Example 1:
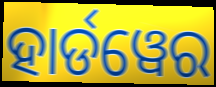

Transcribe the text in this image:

ହାର୍ଡୱେର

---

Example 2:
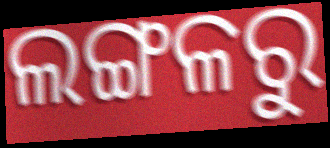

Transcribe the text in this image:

ଲଙ୍ଗଳରୁ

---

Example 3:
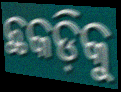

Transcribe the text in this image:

ଛକଡ଼ିକୁ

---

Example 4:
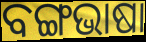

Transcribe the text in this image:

ବଙ୍ଗଭାଷା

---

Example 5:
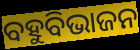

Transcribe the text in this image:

ବହୁବିଭାଜନ